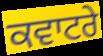
ਕਵਾਟਰੇ